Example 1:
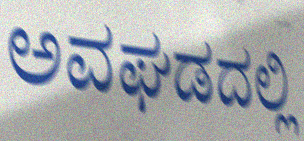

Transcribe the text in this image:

ಅವಘಡದಲ್ಲಿ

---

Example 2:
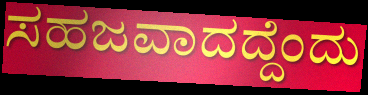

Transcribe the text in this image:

ಸಹಜವಾದದ್ದೆಂದು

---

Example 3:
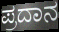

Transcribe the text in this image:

ಪ್ರದಾನ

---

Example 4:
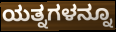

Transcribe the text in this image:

ಯತ್ನಗಳನ್ನೂ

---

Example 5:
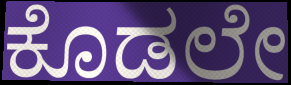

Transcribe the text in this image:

ಕೊಡಲೇ